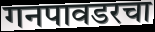
गनपावडरचा